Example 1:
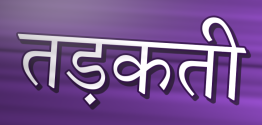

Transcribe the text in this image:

तड़कती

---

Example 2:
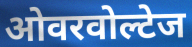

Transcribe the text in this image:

ओवरवोल्टेज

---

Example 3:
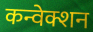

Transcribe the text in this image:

कन्वेक्शन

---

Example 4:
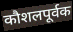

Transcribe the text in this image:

कौशलपूर्वक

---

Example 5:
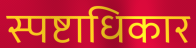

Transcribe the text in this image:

स्पष्टाधिकार